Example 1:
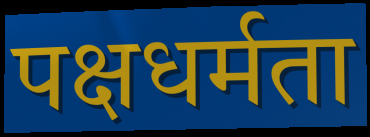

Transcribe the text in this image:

पक्षधर्मता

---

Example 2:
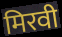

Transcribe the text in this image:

मिरवी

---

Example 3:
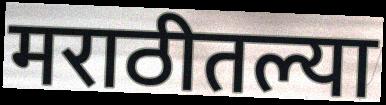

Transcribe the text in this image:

मराठीतल्या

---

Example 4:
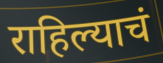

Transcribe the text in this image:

राहिल्याचं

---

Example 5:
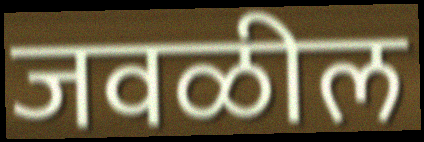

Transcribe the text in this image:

जवळील